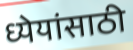
ध्येयांसाठी